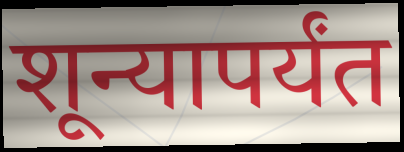
शून्यापर्यंत